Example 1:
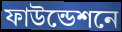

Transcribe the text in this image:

ফাউন্ডেশনে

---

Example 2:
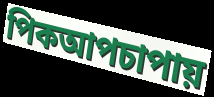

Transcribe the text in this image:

পিকআপচাপায়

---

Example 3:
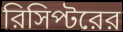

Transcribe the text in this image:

রিসিপ্টরের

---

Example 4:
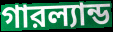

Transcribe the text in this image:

গারল্যান্ড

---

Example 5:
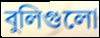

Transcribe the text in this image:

বুলিগুলো